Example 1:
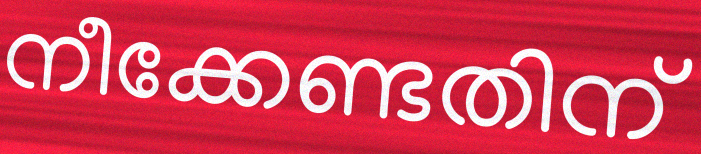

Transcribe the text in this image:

നീക്കേണ്ടതിന്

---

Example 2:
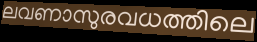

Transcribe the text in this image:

ലവണാസുരവധത്തിലെ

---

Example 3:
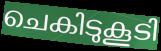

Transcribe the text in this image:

ചെകിടുകൂടി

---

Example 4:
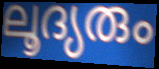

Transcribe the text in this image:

ലൂദ്യരും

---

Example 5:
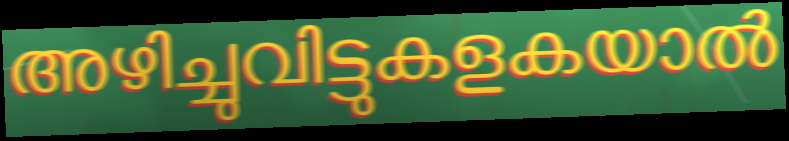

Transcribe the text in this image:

അഴിച്ചുവിട്ടുകളകയാൽ